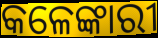
କଳେଙ୍କାରୀ